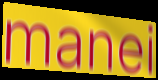
manei